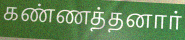
கண்ணத்தனார்